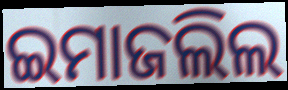
ଇମାଜଲିଲ